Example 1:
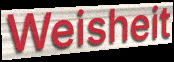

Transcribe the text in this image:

Weisheit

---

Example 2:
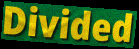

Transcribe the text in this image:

Divided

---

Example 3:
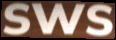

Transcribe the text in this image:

sws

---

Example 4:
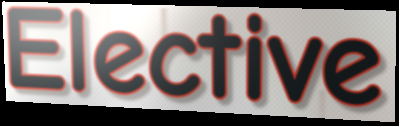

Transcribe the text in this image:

Elective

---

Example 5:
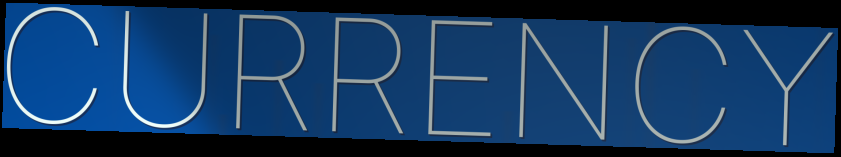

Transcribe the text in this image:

CURRENCY